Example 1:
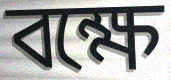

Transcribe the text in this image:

বক্ষে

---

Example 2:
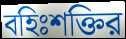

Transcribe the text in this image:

বহিঃশক্তির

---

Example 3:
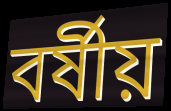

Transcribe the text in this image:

বর্ষীয়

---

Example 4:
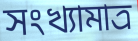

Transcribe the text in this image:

সংখ্যামাত্র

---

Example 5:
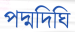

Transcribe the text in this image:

পদ্মদিঘি